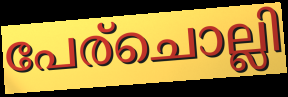
പേര്ചൊല്ലി